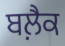
ਬਲ਼ੈਕ